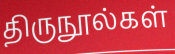
திருநூல்கள்